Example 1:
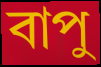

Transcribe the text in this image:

বাপু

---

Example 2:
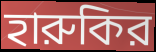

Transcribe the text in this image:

হারুকির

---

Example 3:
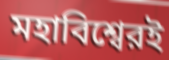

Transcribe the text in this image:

মহাবিশ্বেরই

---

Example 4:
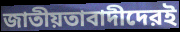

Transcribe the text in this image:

জাতীয়তাবাদীদেরই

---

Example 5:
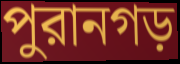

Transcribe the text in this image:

পুরানগড়